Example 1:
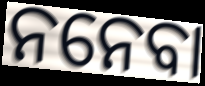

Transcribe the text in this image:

ନନେବା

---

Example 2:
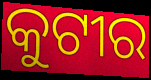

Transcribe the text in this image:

କୁଟୀର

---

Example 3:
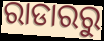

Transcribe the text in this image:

ରାଡାରରୁ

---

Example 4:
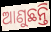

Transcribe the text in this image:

ଆଣୁଛନ୍ତି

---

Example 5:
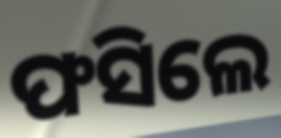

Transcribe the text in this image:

ଫସିଲେ